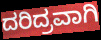
ದರಿದ್ರವಾಗಿ